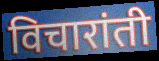
विचारांती